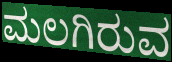
ಮಲಗಿರುವ